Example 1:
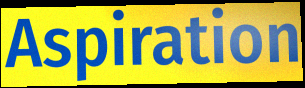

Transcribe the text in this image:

Aspiration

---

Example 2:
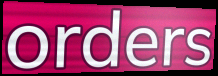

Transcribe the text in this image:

orders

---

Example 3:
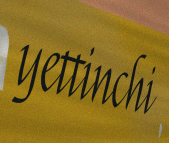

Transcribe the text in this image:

yettinchi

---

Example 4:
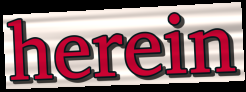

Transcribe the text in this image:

herein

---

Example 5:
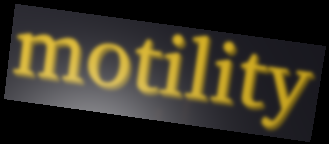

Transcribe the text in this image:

motility